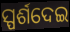
ସ୍ପର୍ଶଦେଇ